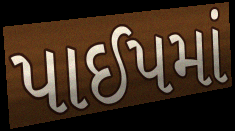
પાઈપમાં